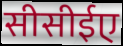
सीसीईए